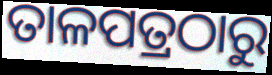
ତାଳପତ୍ରଠାରୁ